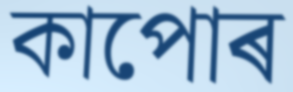
কাপোৰ